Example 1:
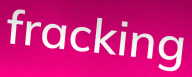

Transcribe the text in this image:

fracking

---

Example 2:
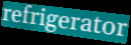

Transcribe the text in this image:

refrigerator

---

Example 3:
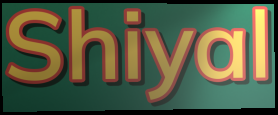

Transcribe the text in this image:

Shiyal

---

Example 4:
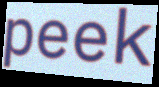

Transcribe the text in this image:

peek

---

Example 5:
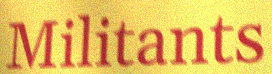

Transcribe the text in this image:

Militants